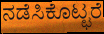
ನಡೆಸಿಕೊಟ್ಟರೆ